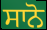
ਸਾਨੋ